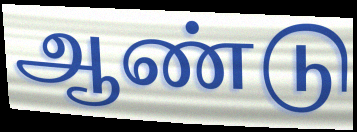
ஆண்டு